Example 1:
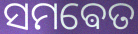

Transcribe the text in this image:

ସମଵେତ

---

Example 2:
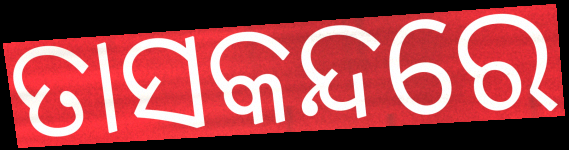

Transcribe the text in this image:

ତାସକନ୍ଦରେ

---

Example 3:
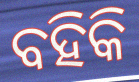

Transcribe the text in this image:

ବହିକି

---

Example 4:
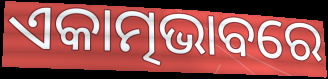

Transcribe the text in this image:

ଏକାତ୍ମଭାବରେ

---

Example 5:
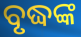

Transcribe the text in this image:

ବୃଦ୍ଧଙ୍କ